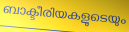
ബാക്ടീരിയകളുടെയും